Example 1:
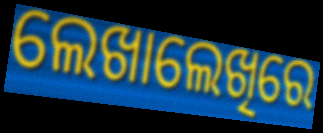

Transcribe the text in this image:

ଲେଖାଲେଖିରେ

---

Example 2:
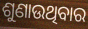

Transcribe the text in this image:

ଶୁଣାଉଥିବାର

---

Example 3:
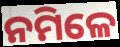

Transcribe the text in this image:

ନମିଳେ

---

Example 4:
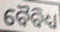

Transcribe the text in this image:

ବୈବିଧ୍ୟ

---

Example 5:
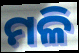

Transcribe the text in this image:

ମଳି